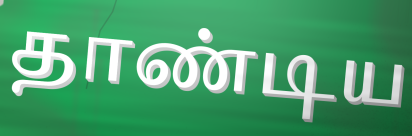
தாண்டிய